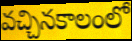
వచ్చినకాలంలో